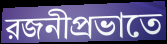
রজনীপ্রভাতে